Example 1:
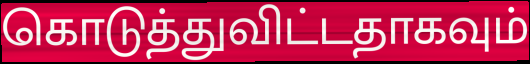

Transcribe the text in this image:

கொடுத்துவிட்டதாகவும்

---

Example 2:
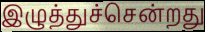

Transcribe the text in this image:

இழுத்துச்சென்றது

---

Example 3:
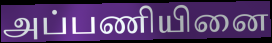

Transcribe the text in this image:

அப்பணியினை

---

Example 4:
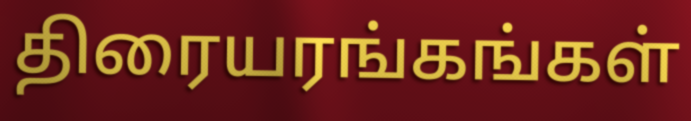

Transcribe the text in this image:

திரையரங்கங்கள்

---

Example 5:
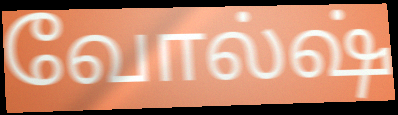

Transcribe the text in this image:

வோல்ஷ்